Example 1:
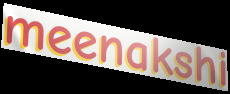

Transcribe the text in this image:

meenakshi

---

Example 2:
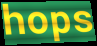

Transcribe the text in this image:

hops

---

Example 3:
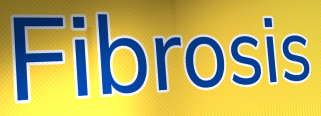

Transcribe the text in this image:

Fibrosis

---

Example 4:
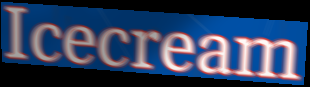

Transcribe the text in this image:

Icecream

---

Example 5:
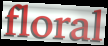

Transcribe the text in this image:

floral